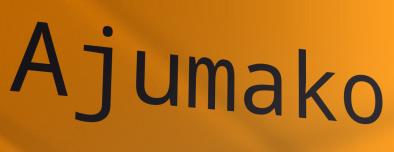
Ajumako